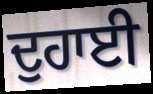
ਦੁਹਾਈ